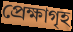
প্ৰেক্ষাগৃহ